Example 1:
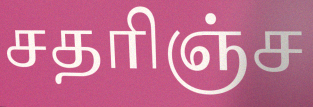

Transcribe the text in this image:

சதரிஞ்ச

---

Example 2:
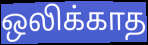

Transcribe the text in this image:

ஒலிக்காத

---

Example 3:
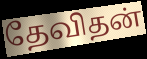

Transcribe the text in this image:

தேவிதன்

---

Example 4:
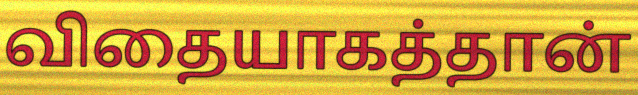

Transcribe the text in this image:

விதையாகத்தான்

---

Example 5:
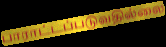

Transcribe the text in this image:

பாராட்டப்படுவதில்லை